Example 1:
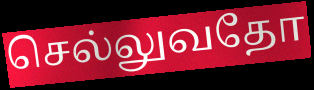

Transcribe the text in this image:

செல்லுவதோ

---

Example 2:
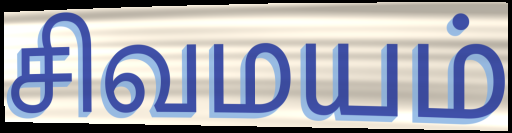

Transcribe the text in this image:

சிவமயம்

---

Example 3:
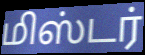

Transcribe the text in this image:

மிஸ்டர்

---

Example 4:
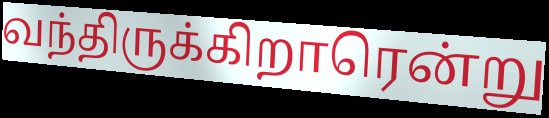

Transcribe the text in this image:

வந்திருக்கிறாரென்று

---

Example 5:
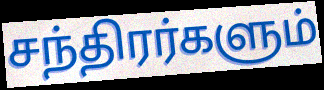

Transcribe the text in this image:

சந்திரர்களும்